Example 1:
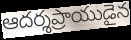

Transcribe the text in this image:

ఆదర్శప్రాయుడైన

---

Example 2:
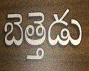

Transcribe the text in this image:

బెత్తెడు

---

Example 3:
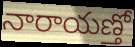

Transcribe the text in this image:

నారాయణ్తో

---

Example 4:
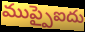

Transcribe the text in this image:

ముప్పైఐదు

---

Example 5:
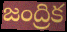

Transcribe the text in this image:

జంద్రిక